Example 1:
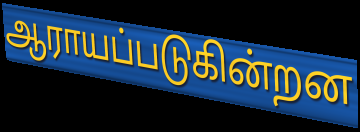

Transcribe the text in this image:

ஆராயப்படுகின்றன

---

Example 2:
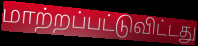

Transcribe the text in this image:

மாற்றப்பட்டுவிட்டது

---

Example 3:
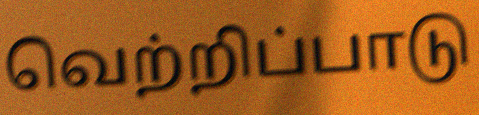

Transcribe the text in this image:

வெற்றிப்பாடு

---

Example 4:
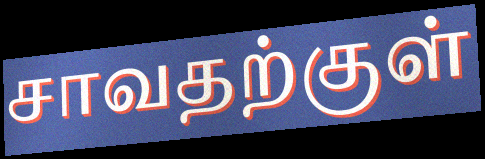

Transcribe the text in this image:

சாவதற்குள்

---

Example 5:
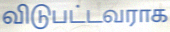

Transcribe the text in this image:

விடுபட்டவராக